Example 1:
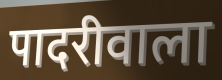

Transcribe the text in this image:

पादरीवाला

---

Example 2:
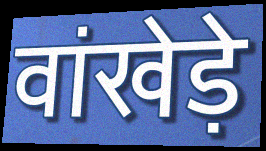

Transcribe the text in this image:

वांखेड़े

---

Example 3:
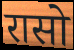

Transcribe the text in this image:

रासो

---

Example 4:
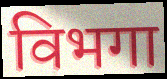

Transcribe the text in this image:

विभगा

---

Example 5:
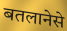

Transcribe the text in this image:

बतलानेसे